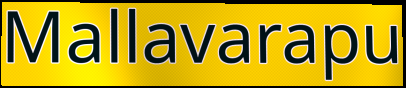
Mallavarapu